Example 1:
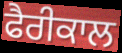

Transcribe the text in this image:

ਫੈਰੀਕਾਲ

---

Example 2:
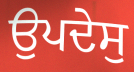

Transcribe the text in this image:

ਉਪਦੇਸੁ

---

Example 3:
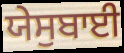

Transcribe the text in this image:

ਯੇਸੁਬਾਈ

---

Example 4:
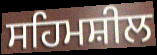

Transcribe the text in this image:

ਸਹਿਮਸ਼ੀਲ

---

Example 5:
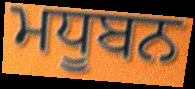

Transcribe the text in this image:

ਮਧੂਬਨ